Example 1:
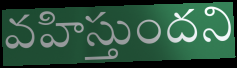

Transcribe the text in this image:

వహిస్తుందని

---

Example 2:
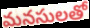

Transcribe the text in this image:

మనసులతో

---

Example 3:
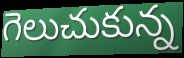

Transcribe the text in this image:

గెలుచుకున్న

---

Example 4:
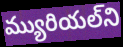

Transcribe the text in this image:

మ్యురియల్‌ని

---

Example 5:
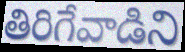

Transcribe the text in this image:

తిరిగేవాడిని